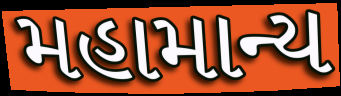
મહામાન્ય